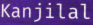
Kanjilal